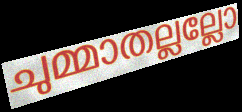
ചുമ്മാതല്ലല്ലോ